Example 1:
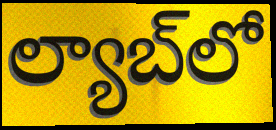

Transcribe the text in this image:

ల్యాబ్‌లో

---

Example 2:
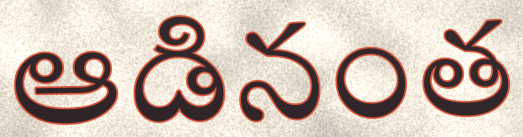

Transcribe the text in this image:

ఆడినంత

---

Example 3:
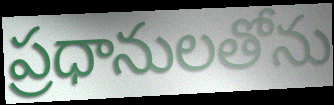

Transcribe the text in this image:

ప్రధానులతోను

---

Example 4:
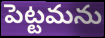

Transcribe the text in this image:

పెట్టమను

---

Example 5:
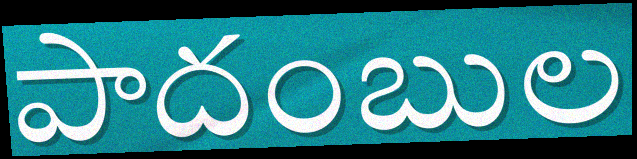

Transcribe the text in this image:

పాదంబుల